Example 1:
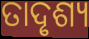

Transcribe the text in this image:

ତାଦୃଶ୍ୟ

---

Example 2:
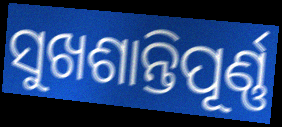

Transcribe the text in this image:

ସୁଖଶାନ୍ତିପୂର୍ଣ୍ଣ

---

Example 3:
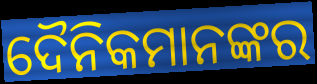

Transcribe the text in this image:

ଦୈନିକମାନଙ୍କର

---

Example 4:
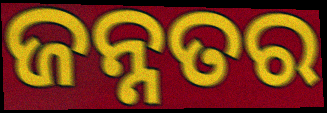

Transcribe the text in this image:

ଜନ୍ନତର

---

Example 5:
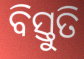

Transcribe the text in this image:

ବିସ୍ତୁତି